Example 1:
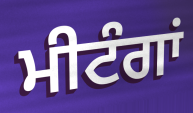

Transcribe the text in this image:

ਮੀਟੰਗਾਂ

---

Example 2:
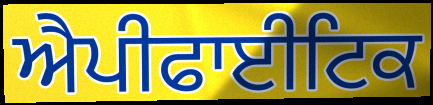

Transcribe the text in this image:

ਐਪੀਫਾਈਟਿਕ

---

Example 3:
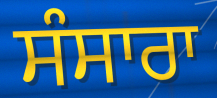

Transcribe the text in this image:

ਸੰਸਾਰਾ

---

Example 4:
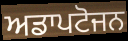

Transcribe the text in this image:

ਅਡਾਪਟੋਜਨ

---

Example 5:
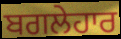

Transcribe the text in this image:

ਬਗਲੇਹਾਰ